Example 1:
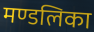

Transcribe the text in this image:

मण्डलिका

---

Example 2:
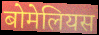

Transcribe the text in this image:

बोमेलियस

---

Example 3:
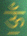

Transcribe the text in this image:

ऊँ॒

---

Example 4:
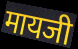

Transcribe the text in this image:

मायजी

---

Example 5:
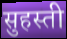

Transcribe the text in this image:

सुहस्ती